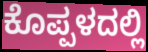
ಕೊಪ್ಪಳದಲ್ಲಿ